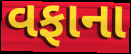
વફાના